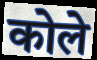
कोले